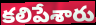
కలిపేశారు